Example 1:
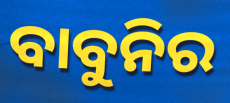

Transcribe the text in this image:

ବାବୁନିର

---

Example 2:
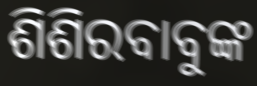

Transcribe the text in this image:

ଶିଶିରବାବୁଙ୍କ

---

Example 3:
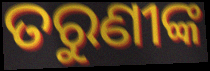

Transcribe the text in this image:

ତରୁଣୀଙ୍କ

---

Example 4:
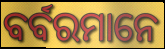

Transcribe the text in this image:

ବର୍ବରମାନେ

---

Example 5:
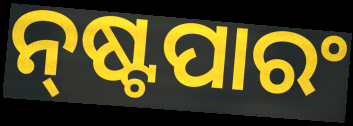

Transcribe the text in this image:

ନ୍‌ଷ୍ଟପାରଂ